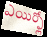
ఎయిర్ఫ్లో